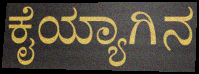
ಕೈಯ್ಯಾಗಿನ